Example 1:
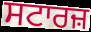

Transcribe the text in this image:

ਸਟਾਰਜ਼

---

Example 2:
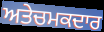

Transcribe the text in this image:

ਅਤੇਚਮਕਦਾਰ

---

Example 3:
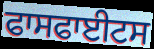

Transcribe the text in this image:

ਫਾਸਫਾਈਟਸ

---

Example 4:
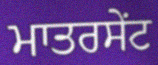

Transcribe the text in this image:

ਮਾਤਰਸੇਂਟ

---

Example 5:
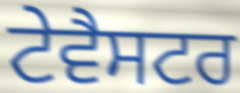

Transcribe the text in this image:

ਟੇਵੈਸਟਰ